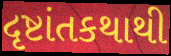
દૃષ્ટાંતકથાથી